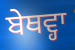
ਬੇਥਵ੍ਹਾ